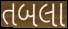
તબલા